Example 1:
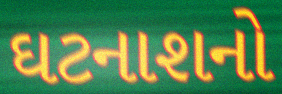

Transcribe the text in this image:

ઘટનાશનો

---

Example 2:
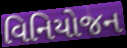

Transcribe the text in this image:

વિનિયોજન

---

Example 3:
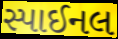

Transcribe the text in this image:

સ્પાઈનલ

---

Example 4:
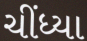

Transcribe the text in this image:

ચીંધ્યા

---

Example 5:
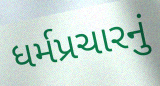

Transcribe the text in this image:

ધર્મપ્રચારનું